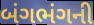
બંગભંગની